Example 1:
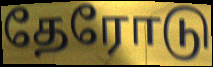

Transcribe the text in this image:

தேரோடு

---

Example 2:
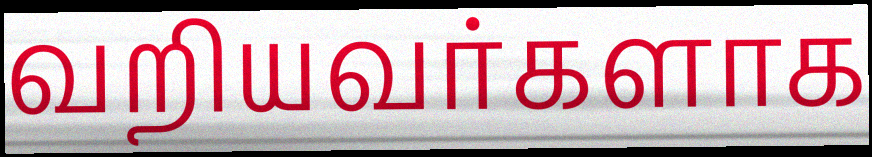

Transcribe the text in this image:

வறியவர்களாக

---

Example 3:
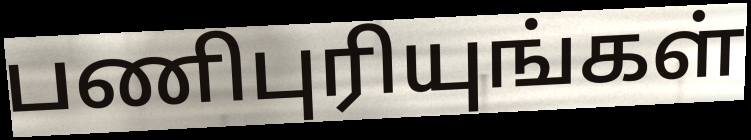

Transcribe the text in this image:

பணிபுரியுங்கள்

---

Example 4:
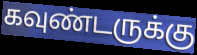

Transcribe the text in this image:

கவுண்டருக்கு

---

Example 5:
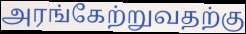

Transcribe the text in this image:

அரங்கேற்றுவதற்கு